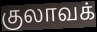
குலாவக்